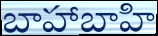
బాహాబాహి